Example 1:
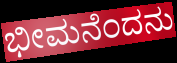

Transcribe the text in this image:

ಭೀಮನೆಂದನು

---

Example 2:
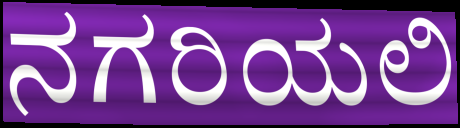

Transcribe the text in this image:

ನಗರಿಯಲಿ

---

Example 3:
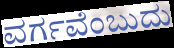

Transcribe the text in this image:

ವರ್ಗವೆಂಬುದು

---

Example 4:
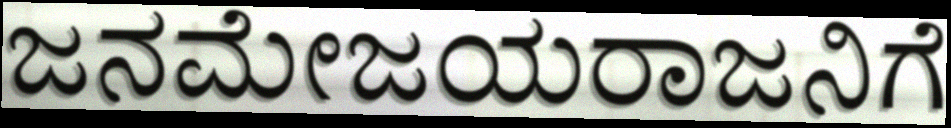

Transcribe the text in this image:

ಜನಮೇಜಯರಾಜನಿಗೆ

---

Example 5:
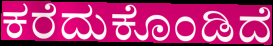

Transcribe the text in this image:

ಕರೆದುಕೊಂಡಿದೆ